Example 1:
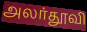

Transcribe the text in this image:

அலர்தூவி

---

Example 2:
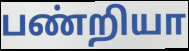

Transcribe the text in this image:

பண்றியா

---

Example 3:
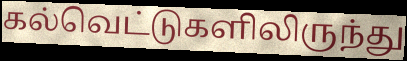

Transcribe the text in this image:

கல்வெட்டுகளிலிருந்து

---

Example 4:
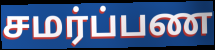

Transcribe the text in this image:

சமர்ப்பண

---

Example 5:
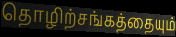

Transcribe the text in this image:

தொழிற்சங்கத்தையும்